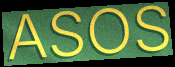
ASOS